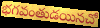
భగవంతుడయినచో